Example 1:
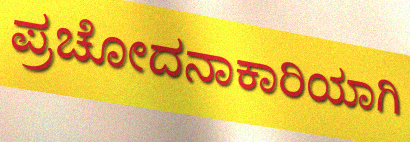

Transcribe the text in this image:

ಪ್ರಚೋದನಾಕಾರಿಯಾಗಿ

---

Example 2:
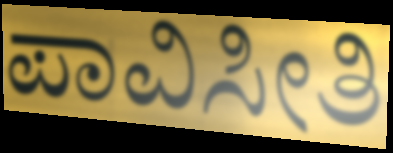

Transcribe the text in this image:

ಪಾವಿಸೀತಿ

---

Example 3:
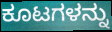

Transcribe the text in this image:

ಕೂಟಗಳನ್ನು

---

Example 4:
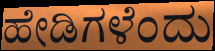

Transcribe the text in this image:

ಹೇಡಿಗಳೆಂದು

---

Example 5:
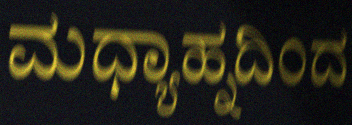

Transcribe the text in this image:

ಮಧ್ಯಾಹ್ನದಿಂದ